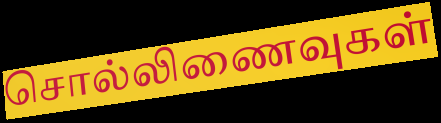
சொல்லிணைவுகள்